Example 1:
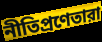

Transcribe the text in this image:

নীতিপ্রণেতারা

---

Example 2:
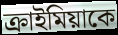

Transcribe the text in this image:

ক্রাইমিয়াকে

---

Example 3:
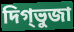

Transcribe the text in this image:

দিগ্ভুজা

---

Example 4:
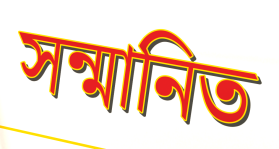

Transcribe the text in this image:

সন্মানিত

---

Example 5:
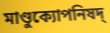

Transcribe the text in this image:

মাণ্ডুক্যোপনিষদ্